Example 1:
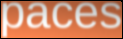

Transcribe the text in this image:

paces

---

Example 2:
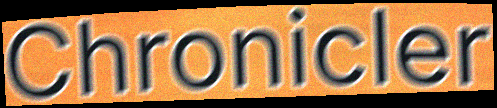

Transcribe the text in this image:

Chronicler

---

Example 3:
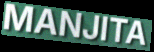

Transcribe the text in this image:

MANJITA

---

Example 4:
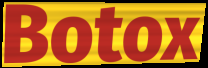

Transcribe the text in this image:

Botox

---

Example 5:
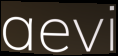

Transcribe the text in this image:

aevi